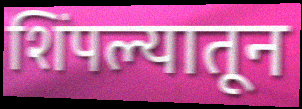
शिंपल्यातून